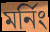
মর্নিং